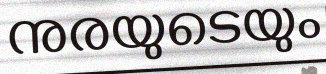
നുരയുടെയും